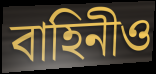
বাহিনীও